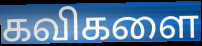
கவிகளை